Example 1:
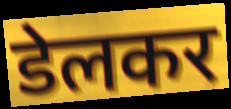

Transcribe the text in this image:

डेलकर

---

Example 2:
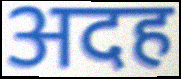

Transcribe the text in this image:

अदह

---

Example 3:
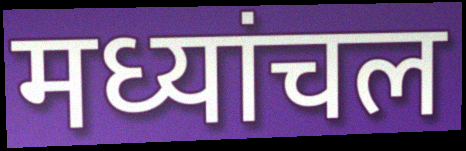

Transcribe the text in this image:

मध्यांचल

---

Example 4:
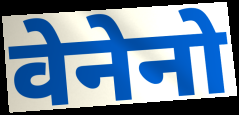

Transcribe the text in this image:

वेनेनो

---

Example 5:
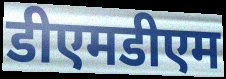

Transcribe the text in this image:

डीएमडीएम